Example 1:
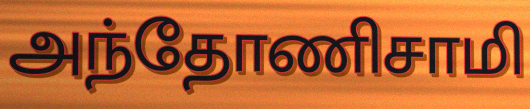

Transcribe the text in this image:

அந்தோணிசாமி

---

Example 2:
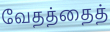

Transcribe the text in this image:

வேதத்தைத்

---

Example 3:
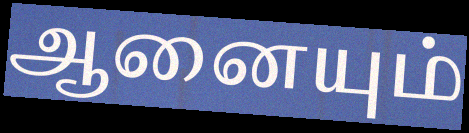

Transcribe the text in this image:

ஆனையும்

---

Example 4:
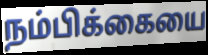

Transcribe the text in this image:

நம்பிக்கையை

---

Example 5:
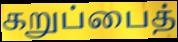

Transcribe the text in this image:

கறுப்பைத்